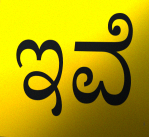
ಇವೆ